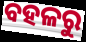
ବହଳରୁ